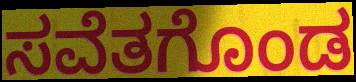
ಸವೆತಗೊಂಡ